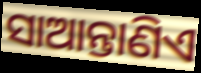
ସାଆନ୍ତାଣିଏ